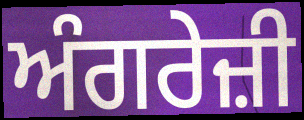
ਅੰਗਰੇਜ਼ੀ